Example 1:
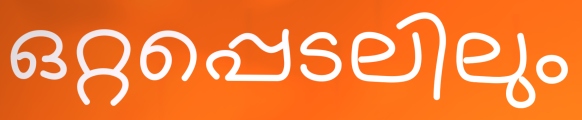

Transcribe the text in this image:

ഒറ്റപ്പെടലിലും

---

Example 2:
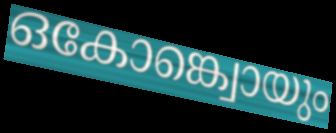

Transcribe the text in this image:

ഒകോങ്ക്വൊയും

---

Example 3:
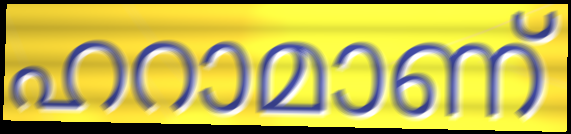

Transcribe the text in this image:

ഹറാമാണ്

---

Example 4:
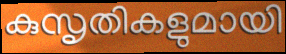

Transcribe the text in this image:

കുസൃതികളുമായി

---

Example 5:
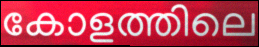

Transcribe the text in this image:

കോളത്തിലെ